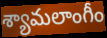
శ్యామలాంగీం